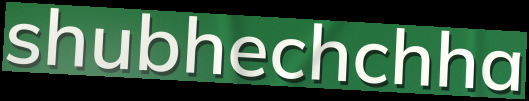
shubhechchha